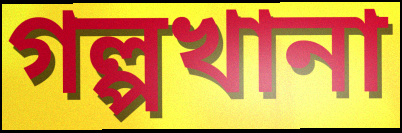
গল্পখানা